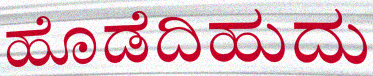
ಹೊಡೆದಿಹುದು